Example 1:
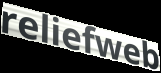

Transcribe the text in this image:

reliefweb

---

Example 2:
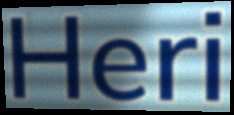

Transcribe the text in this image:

Heri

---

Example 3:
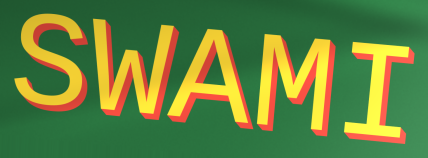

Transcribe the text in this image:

SWAMI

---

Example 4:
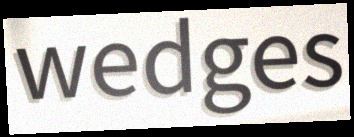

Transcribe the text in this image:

wedges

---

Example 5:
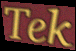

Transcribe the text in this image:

Tek